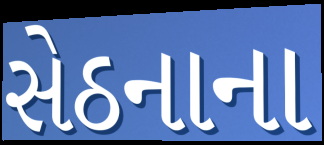
સેઠનાના